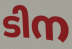
ടിന